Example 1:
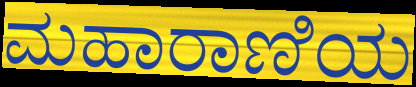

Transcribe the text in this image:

ಮಹಾರಾಣಿಯ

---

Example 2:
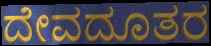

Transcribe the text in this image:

ದೇವದೂತರ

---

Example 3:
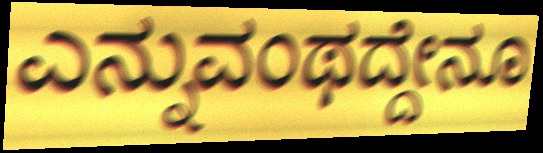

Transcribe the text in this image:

ಎನ್ನುವಂಥದ್ದೇನೂ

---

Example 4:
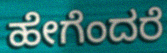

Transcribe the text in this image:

ಹೇಗೆಂದರೆ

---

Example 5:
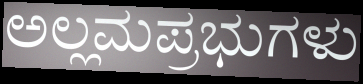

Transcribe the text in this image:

ಅಲ್ಲಮಪ್ರಭುಗಳು